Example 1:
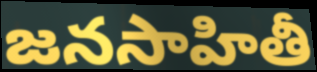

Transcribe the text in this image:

జనసాహితీ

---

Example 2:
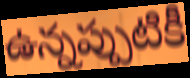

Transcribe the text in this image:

ఉన్నప్పుటికీ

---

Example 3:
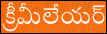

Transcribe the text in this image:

క్రీమీలేయర్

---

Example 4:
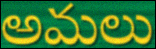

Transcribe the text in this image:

అమలు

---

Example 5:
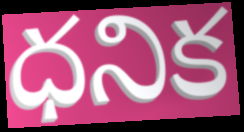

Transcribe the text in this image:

ధనిక